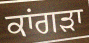
ਕਾਂਗੜਾ